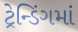
ટ્રેન્ડિંગમાં